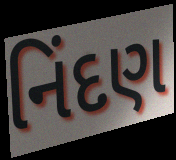
નિંદણ